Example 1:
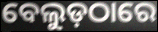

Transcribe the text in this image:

ବେଲୁଡ଼ଠାରେ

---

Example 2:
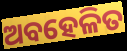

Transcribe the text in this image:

ଅବହେଳିତ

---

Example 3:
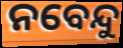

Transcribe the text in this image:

ନବେନ୍ଦୁ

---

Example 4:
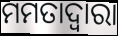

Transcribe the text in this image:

ମମତାଦ୍ୱାରା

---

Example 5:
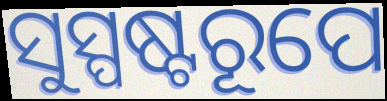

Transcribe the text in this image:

ସୁସ୍ପଷ୍ଟରୂପେ